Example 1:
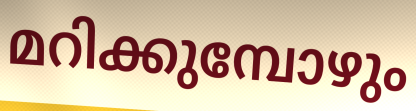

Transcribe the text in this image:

മറിക്കുമ്പോഴും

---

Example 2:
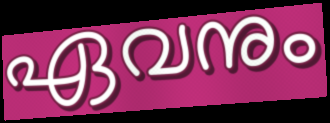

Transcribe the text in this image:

ഏവനും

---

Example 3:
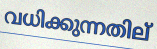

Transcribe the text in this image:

വധിക്കുന്നതില്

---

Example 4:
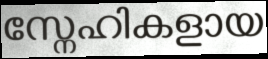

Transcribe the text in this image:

സ്നേഹികളായ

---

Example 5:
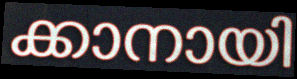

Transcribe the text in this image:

ക്കാനായി